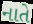
નાતે